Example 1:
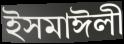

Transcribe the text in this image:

ইসমাঈলী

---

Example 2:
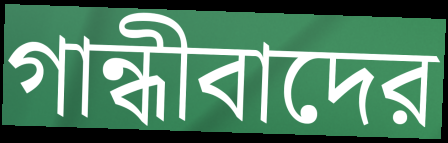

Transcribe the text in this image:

গান্ধীবাদের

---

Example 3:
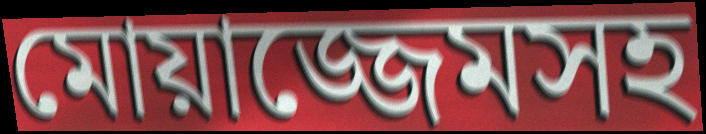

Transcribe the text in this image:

মোয়াজ্জেমসহ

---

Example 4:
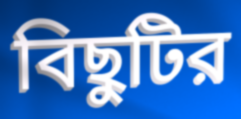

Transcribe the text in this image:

বিছুটির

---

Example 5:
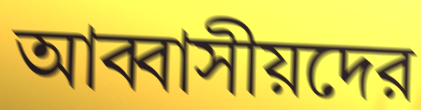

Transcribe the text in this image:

আব্বাসীয়দের